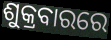
ଶୁକ୍ରବାରରେ